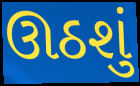
ઊઠશું